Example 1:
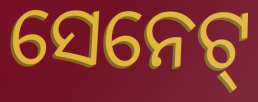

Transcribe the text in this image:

ସେନେଟ୍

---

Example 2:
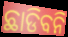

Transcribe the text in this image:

ଛାଡିବନି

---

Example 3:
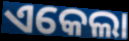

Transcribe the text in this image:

ଏକେଲା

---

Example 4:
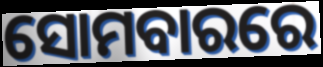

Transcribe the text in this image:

ସୋମବାରରେ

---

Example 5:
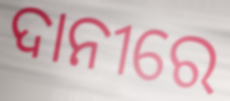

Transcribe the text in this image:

ଦାନୀରେ